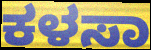
ಕಳಸಾ